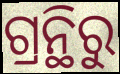
ଗ୍ରନ୍ଥିରୁ